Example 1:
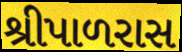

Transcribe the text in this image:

શ્રીપાળરાસ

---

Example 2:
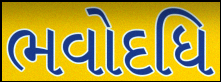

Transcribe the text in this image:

ભવોદધિ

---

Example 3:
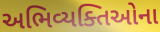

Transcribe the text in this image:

અભિવ્યક્તિઓના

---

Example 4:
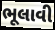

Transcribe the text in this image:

ભૂલાવી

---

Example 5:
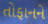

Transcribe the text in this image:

તોફાનને